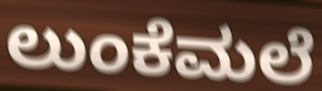
ಲುಂಕೆಮಲೆ